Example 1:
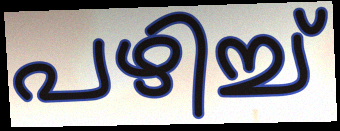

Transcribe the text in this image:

പഴിച്ച്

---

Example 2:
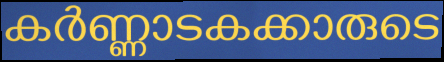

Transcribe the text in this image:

കർണ്ണാടകക്കാരുടെ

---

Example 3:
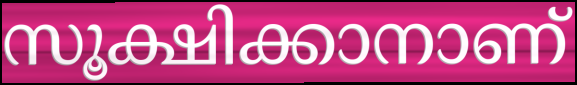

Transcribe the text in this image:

സൂക്ഷിക്കാനാണ്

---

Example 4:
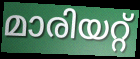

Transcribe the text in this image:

മാരിയറ്റ്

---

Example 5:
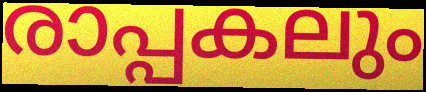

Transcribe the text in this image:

രാപ്പകലും